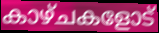
കാഴ്ചകളോട്